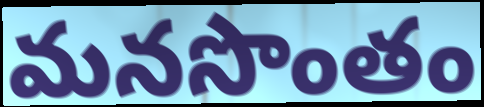
మనసొంతం